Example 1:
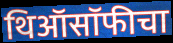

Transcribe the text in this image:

थिऑसॉफीचा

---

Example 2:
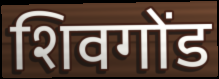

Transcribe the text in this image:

शिवगोंड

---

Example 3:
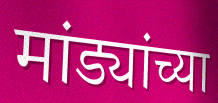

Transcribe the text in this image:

मांड्यांच्या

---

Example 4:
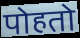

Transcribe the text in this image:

पोहतो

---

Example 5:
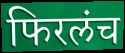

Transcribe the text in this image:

फिरलंच